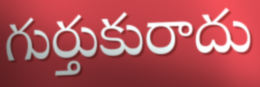
గుర్తుకురాదు